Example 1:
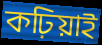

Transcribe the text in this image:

কঢ়িয়াই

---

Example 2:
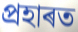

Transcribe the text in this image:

প্ৰহাৰত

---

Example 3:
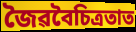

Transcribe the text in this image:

জৈৱবৈচিত্ৰতাত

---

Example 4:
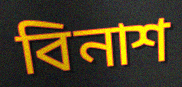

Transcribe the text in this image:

বিনাশ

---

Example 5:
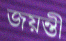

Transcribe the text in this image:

জয়ন্তী